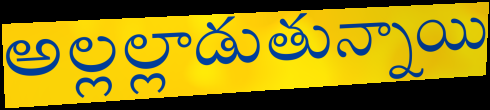
అల్లల్లాడుతున్నాయి